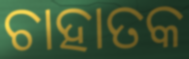
ଚାହାତକ